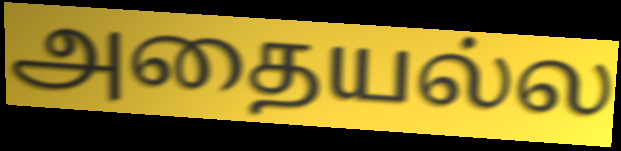
அதையல்ல